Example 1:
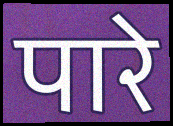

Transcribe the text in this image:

पारे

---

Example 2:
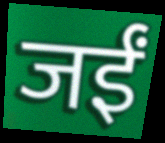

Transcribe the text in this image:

जईं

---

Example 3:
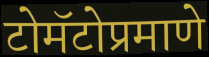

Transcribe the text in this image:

टोमॅटोप्रमाणे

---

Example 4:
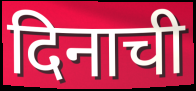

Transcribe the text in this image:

दिनाची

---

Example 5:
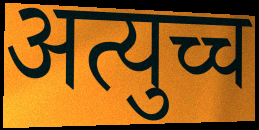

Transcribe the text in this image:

अत्युच्च